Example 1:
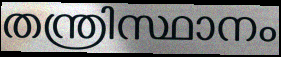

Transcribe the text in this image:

തന്ത്രിസ്ഥാനം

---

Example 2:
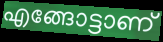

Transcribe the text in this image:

എങ്ങോട്ടാണ്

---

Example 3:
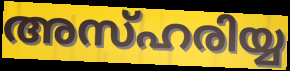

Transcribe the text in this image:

അസ്ഹരിയ്യ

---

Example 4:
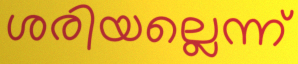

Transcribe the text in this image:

ശരിയല്ലെന്ന്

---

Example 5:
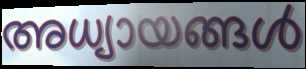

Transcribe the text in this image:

അധ്യായങ്ങൾ